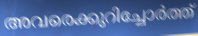
അവരെക്കുറിച്ചോർത്ത്